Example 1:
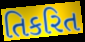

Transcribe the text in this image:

તિકરિત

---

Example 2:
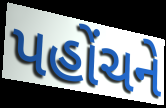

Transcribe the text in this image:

પહોંચને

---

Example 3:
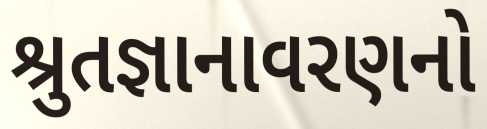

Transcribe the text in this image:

શ્રુતજ્ઞાનાવરણનો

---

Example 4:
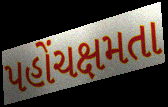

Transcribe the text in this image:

પહોંચક્ષમતા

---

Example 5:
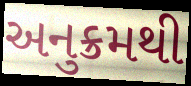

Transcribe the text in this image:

અનુક્રમથી